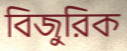
বিজুরিক